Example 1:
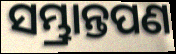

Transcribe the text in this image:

ସମ୍ଭ୍ରାନ୍ତପଣ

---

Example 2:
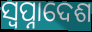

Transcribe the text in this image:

ସ୍ଵପ୍ନାଦେଶ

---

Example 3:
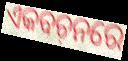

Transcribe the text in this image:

ଏକବଚ଼ନରେ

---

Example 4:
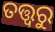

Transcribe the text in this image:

ତତ୍ତ୍ୱରୁ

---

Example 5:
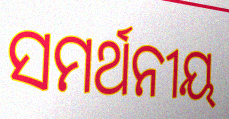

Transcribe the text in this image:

ସମର୍ଥନୀୟ